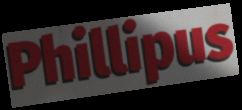
Phillipus